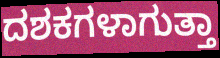
ದಶಕಗಳಾಗುತ್ತಾ